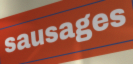
sausages